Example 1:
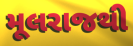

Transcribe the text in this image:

મૂલરાજથી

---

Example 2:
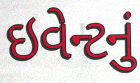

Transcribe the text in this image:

ઇવેન્ટનું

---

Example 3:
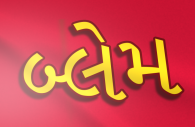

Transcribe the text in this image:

બ્લેમ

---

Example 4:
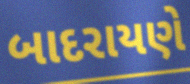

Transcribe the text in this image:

બાદરાયણે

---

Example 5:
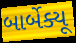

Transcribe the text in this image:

બાર્બેક્યૂ